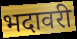
भदावरी